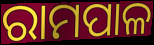
ରାମପାଳ